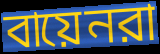
বায়েনরা